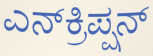
ಎನ್‌ಕ್ರಿಪ್ಷನ್